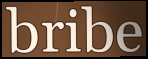
bribe